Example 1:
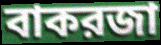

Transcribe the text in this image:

বাকরজা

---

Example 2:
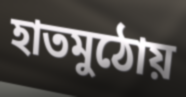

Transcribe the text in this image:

হাতমুঠোয়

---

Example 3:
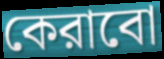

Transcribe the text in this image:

কেরাবো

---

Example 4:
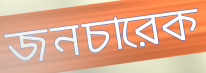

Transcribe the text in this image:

জনচারেক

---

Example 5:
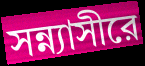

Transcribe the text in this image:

সন্ন্যাসীরে